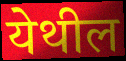
येथील